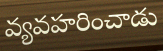
వ్యవహరించాడు